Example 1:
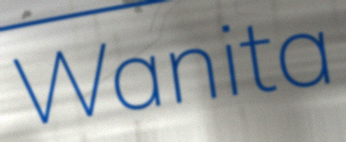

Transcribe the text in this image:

Wanita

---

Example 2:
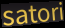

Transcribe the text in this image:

satori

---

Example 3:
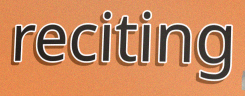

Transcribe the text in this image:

reciting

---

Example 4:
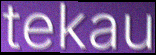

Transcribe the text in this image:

tekau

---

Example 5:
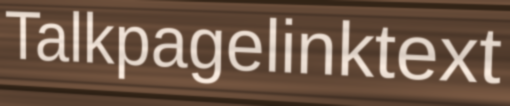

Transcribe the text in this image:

Talkpagelinktext